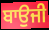
ਬਾਉਜੀ